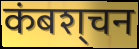
कंबश्चन